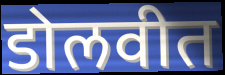
डोलवीत